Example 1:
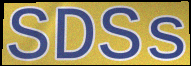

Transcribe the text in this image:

SDSs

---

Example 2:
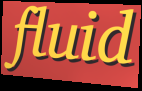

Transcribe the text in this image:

fluid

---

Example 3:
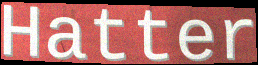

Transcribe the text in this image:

Hatter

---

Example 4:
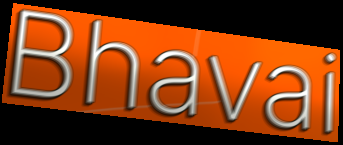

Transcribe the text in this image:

Bhavai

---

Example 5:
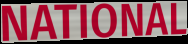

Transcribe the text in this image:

NATIONAL